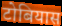
टोबियास